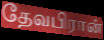
தேவபிரான்